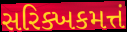
સરિક્ખકમત્તં